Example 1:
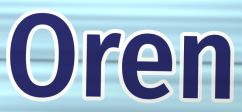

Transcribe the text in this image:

Oren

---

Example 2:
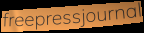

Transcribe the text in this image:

freepressjournal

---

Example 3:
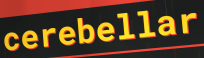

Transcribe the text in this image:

cerebellar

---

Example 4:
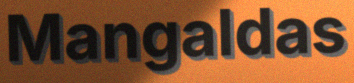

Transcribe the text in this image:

Mangaldas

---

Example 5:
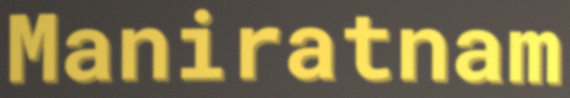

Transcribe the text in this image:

Maniratnam